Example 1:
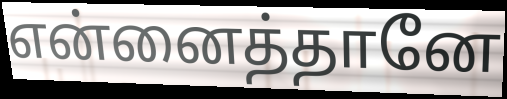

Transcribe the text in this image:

என்னைத்தானே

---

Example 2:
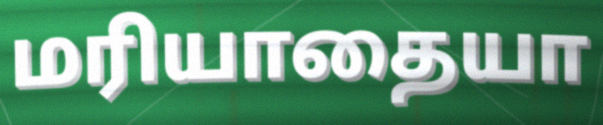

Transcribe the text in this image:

மரியாதையா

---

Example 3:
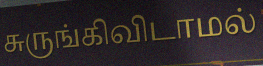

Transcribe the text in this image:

சுருங்கிவிடாமல்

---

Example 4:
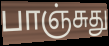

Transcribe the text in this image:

பாஞ்சுது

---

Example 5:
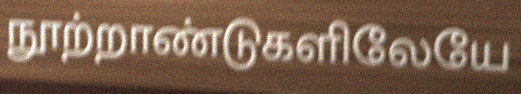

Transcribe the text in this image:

நூற்றாண்டுகளிலேயே